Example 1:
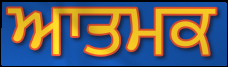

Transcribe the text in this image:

ਆਤਮਕ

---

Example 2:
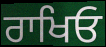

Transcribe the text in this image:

ਰਾਖਿਓ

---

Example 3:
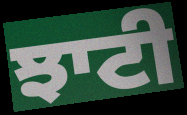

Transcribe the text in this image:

ਝਾਟੀ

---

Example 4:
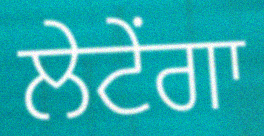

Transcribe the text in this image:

ਲੇਟੇਂਗਾ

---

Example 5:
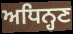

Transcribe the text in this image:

ਅਧਿਨ੍ਹਣ